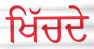
ਖਿੱਚਦੇ